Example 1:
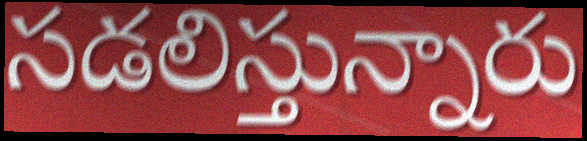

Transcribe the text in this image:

సడలిస్తున్నారు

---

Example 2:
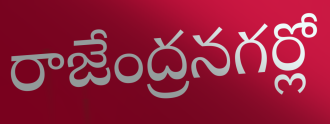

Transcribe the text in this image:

రాజేంద్రనగర్లో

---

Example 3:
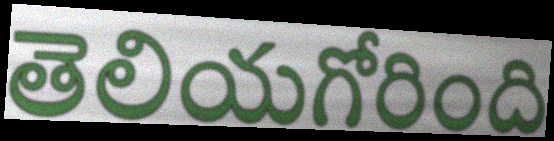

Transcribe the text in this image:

తెలియగోరింది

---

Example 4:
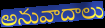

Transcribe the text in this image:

అనువాదాలు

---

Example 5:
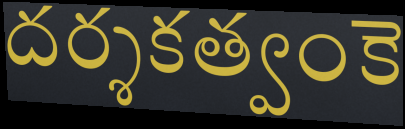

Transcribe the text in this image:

దర్శకత్వంకె